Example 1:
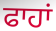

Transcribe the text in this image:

ਫਾਹਾਂ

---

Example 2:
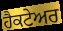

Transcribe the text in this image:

ਹੈਕਟੇਅਰ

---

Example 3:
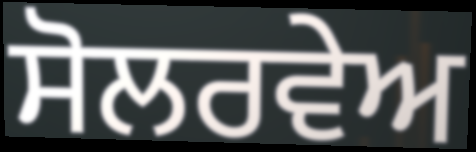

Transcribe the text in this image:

ਸੋਲਰਵੇਅ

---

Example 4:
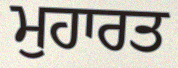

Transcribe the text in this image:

ਮੁਹਾਰਤ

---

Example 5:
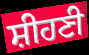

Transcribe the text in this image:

ਸ਼ੀਹਣੀ